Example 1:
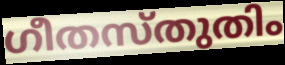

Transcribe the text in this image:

ഗീതസ്തുതിം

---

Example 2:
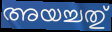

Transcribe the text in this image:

അയച്ചതു്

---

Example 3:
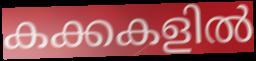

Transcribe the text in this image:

കക്കകളിൽ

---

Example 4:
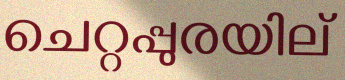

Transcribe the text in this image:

ചെറ്റപ്പുരയില്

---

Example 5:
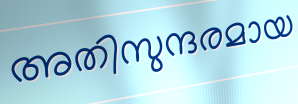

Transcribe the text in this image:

അതിസുന്ദരമായ